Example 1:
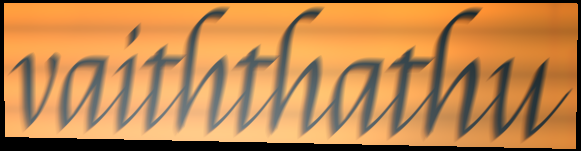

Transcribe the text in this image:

vaiththathu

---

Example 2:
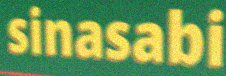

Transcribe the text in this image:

sinasabi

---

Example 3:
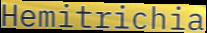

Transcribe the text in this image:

Hemitrichia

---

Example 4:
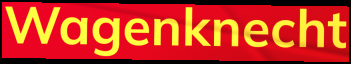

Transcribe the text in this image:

Wagenknecht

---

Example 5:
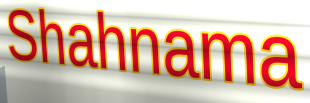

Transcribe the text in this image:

Shahnama